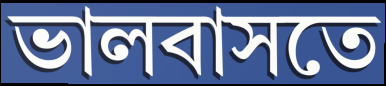
ভালবাসতে